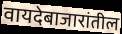
वायदेबाजारांतील